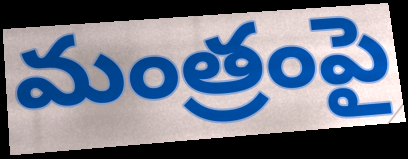
మంత్రంపై